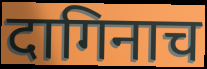
दागिनाच